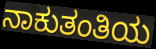
ನಾಕುತಂತಿಯ